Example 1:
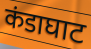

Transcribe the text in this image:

कंडाघाट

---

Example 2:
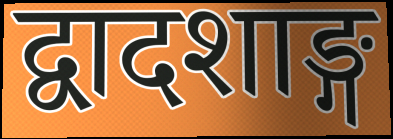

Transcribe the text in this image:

द्वादशाङ्ग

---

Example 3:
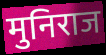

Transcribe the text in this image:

मुनिराज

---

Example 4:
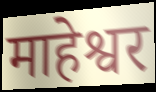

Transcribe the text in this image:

माहेश्वर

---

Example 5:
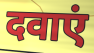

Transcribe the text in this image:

दवाएं